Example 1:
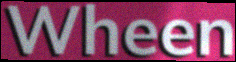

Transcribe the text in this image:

Wheen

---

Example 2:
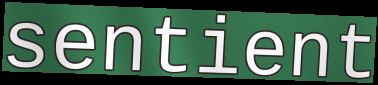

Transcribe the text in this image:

sentient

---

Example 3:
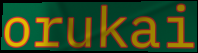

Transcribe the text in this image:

orukai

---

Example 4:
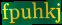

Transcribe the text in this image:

fpuhkj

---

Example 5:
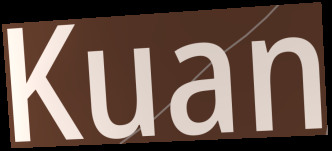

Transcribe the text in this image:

Kuan